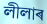
লীলাৰ